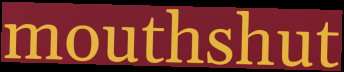
mouthshut